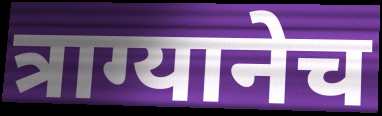
त्राग्यानेच